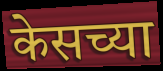
केसच्या